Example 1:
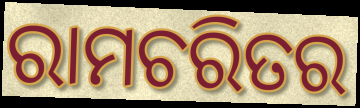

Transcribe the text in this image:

ରାମଚରିତର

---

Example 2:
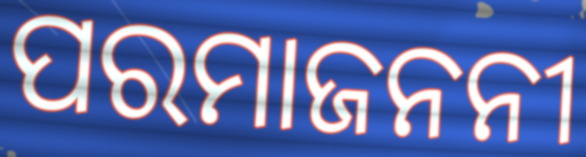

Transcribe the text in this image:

ପରମାଜନନୀ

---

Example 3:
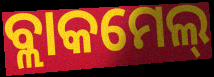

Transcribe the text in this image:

ବ୍ଲାକମେଲ୍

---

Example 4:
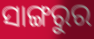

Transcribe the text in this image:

ସାଙ୍ଗରୁର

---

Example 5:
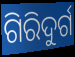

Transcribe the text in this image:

ଗିରିଦୁର୍ଗ